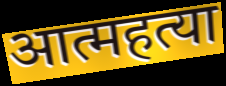
आत्‍महत्‍या